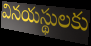
వినయస్థులకు